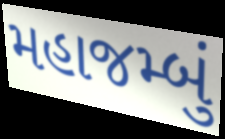
મહાજમ્બું